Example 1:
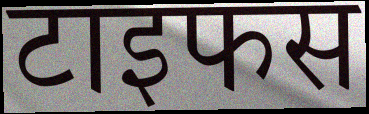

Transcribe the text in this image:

टाइफस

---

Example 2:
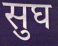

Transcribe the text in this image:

सुघ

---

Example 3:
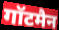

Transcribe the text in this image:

गॉटमैन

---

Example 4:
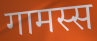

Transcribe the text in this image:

गामस्स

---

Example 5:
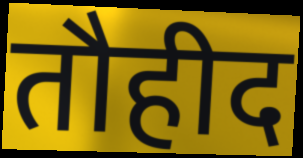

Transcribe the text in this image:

तौहीद